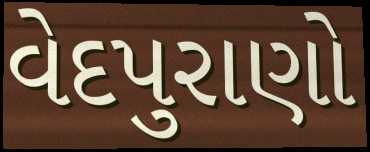
વેદપુરાણો